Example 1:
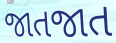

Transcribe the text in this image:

જાતજાત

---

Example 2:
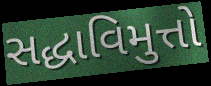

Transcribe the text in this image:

સદ્ધાવિમુત્તો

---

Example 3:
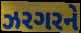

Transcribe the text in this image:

ઝરગરને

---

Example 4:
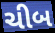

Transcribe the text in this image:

ચીબ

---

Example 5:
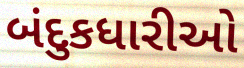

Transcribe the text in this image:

બંદુકધારીઓ